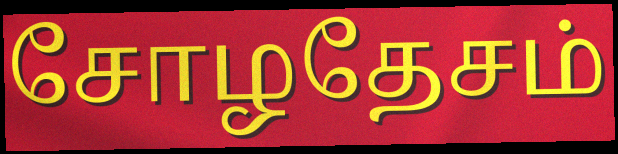
சோழதேசம்